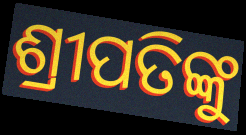
ଶ୍ରୀପତିଙ୍କୁ